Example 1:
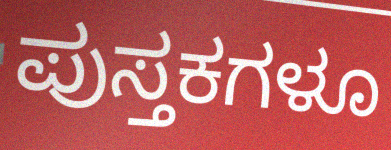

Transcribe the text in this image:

ಪುಸ್ತಕಗಳೂ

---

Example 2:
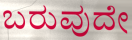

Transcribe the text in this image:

ಬರುವುದೇ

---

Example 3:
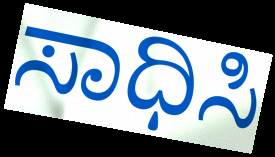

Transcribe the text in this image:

ಸಾಧಿಸಿ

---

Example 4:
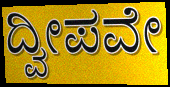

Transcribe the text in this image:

ದ್ವೀಪವೇ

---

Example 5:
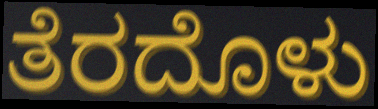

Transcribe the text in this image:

ತೆರದೊಳು